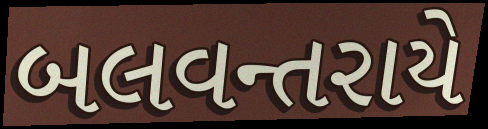
બલવન્તરાયે